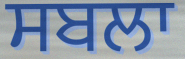
ਸਬਲਾ